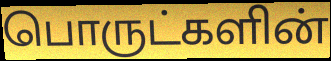
பொருட்களின்